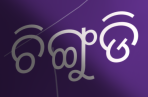
ଚିଙ୍ଗୁଡି